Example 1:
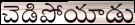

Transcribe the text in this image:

చెడిపోయాడు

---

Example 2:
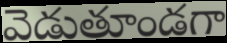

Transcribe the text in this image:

వెడుతూండగా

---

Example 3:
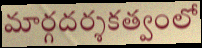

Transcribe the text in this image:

మార్గదర్శకత్వంలో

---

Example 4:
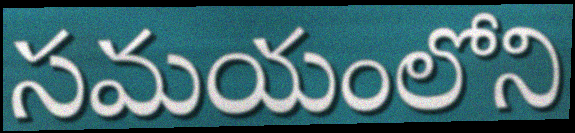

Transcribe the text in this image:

సమయంలోని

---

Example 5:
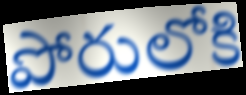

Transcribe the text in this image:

పోరులోకి